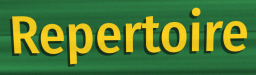
Repertoire